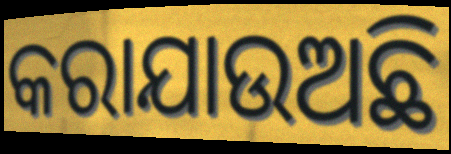
କରାଯାଉଅଛି